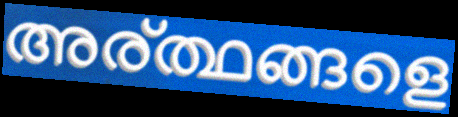
അര്ത്ഥങ്ങളെ